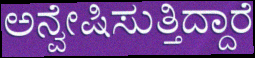
ಅನ್ವೇಷಿಸುತ್ತಿದ್ದಾರೆ